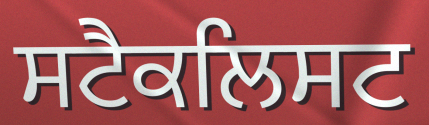
ਸਟੈਕਲਿਸਟ